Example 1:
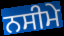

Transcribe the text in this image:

ਨਸੀਮੇ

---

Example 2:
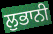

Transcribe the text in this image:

ਲੁਭਾਨੀ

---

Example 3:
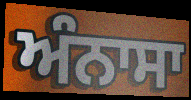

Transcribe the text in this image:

ਅੰਨਾਸਾ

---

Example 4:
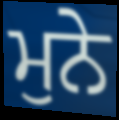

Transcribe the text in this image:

ਮੁਨੇ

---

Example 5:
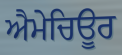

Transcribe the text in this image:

ਐਮੇਚਿਊਰ